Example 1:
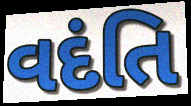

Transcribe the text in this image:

વદંતિ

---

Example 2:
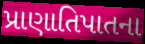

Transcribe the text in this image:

પ્રાણાતિપાતના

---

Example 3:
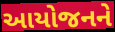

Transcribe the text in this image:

આયોજનને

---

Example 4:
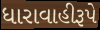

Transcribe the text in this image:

ધારાવાહીરૂપે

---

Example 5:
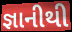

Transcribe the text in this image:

જ્ઞાનીથી